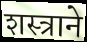
शस्त्राने